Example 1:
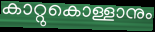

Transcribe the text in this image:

കാറ്റുകൊള്ളാനും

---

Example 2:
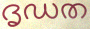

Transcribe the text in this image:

ദൃഡത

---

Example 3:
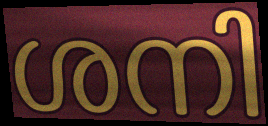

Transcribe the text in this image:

ശനി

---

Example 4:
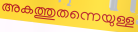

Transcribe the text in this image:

അകത്തുതന്നെയുള്ള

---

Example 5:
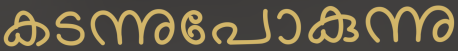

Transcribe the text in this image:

കടന്നുപോകുന്നു